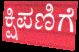
ಕ್ಷಿಪಣಿಗೆ